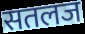
सतलज